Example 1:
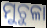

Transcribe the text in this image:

ମୁଚୁଳା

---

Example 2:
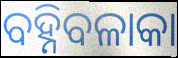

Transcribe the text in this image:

ବହ୍ନିବଳାକା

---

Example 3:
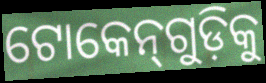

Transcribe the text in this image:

ଟୋକେନ୍‌ଗୁଡ଼ିକୁ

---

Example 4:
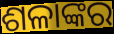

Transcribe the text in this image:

ଶଳାଙ୍କର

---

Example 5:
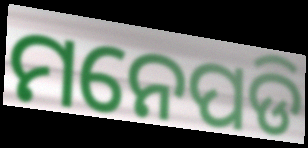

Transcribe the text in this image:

ମନେପଡି